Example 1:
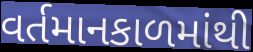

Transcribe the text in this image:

વર્તમાનકાળમાંથી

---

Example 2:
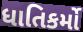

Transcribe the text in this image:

ધાતિકર્મો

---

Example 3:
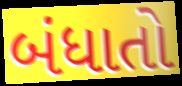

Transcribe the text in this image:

બંધાતો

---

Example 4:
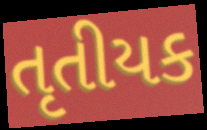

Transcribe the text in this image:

તૃતીયક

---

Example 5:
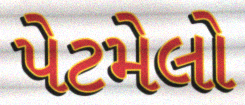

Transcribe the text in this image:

પેટમેલો